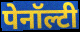
पेनॉल्टी